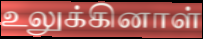
உலுக்கினாள்